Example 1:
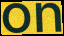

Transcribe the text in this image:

on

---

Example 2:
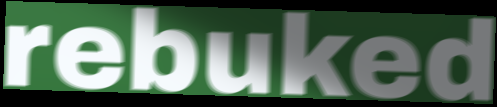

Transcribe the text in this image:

rebuked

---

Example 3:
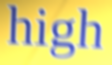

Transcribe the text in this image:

high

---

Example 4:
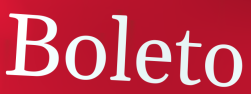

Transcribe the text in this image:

Boleto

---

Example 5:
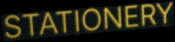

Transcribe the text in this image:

STATIONERY